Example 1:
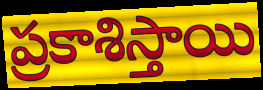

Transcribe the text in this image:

ప్రకాశిస్తాయి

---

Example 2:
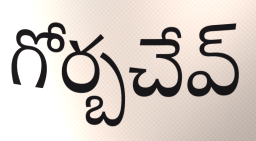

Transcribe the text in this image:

గోర్బచేవ్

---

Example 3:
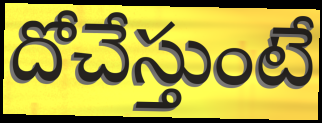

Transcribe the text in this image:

దోచేస్తుంటే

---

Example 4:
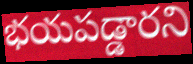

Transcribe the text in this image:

భయపడ్డారని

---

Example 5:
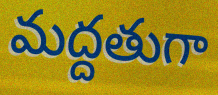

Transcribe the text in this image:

మద్దతుగా